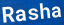
Rasha